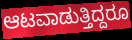
ಆಟವಾಡುತ್ತಿದ್ದರೂ